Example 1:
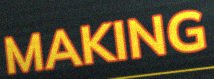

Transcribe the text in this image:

MAKING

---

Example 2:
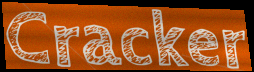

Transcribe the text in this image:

Cracker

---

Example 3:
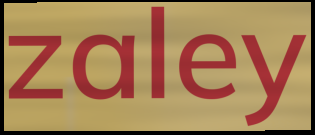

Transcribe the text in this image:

zaley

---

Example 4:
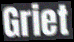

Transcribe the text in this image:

Griet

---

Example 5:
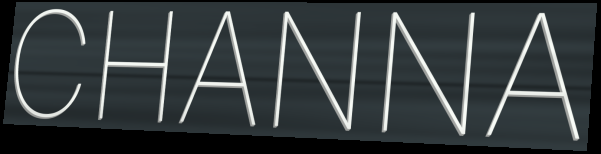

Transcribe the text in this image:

CHANNA